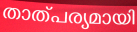
താത്പര്യമായി